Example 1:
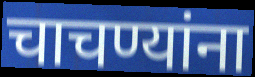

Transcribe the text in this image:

चाचण्यांना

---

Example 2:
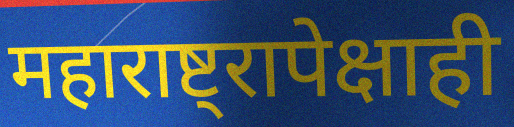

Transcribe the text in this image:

महाराष्ट्रापेक्षाही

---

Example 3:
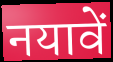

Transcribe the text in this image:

नयावें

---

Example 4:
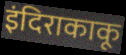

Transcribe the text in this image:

इंदिराकाकू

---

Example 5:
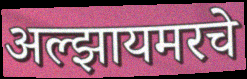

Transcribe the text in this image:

अल्झायमरचे